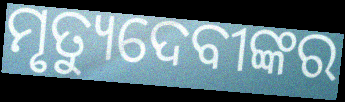
ମୃତ୍ୟୁଦେବୀଙ୍କର